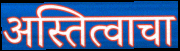
अस्तित्वाचा